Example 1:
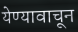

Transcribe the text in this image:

येण्यावाचून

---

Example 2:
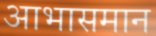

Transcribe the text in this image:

आभासमान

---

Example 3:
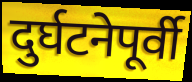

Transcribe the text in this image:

दुर्घटनेपूर्वी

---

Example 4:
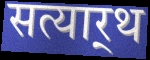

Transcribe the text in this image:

सत्यार्थ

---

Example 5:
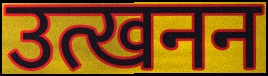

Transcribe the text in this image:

उत्खनन